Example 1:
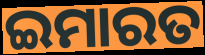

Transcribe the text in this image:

ଇମାରତ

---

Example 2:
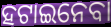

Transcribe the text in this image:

ହଟାଇନେବା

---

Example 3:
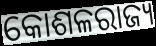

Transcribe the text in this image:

କୋଶଳରାଜ୍ୟ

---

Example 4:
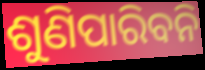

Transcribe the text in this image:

ଶୁଣିପାରିବନି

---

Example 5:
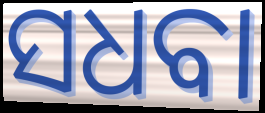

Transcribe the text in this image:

ସଧବା